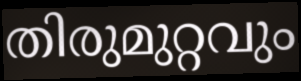
തിരുമുറ്റവും